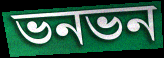
ভনভন